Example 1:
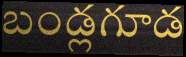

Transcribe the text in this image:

బండ్లగూడ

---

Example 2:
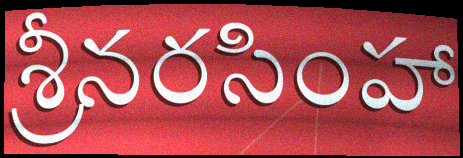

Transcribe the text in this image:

శ్రీనరసింహా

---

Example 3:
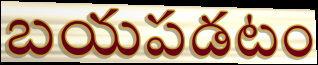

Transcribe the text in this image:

బయపడటం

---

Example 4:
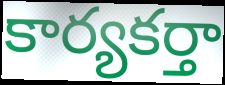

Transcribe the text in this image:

కార్యకర్తా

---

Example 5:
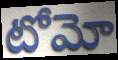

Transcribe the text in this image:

టోమో